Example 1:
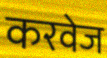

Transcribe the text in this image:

करवेज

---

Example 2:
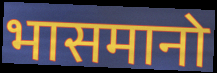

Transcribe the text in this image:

भासमानो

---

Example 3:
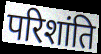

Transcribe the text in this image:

परिशांति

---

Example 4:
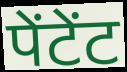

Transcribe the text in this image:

पेंटेंट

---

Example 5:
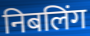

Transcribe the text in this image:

निबलिंग